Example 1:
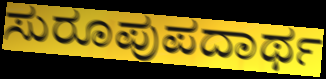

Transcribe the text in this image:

ಸುರೂಪುಪದಾರ್ಥ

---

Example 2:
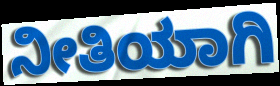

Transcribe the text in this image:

ನೀತಿಯಾಗಿ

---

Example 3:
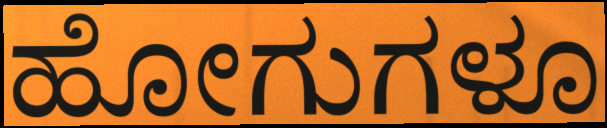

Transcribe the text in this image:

ಹೋಗುಗಳೂ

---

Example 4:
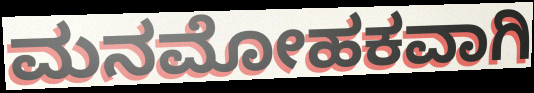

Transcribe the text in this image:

ಮನಮೋಹಕವಾಗಿ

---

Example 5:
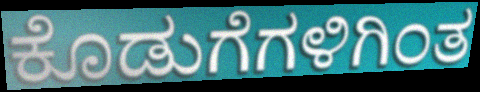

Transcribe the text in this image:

ಕೊಡುಗೆಗಳಿಗಿಂತ